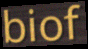
biof